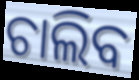
ଚାଲିବ